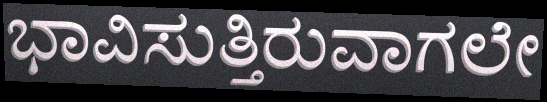
ಭಾವಿಸುತ್ತಿರುವಾಗಲೇ